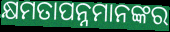
କ୍ଷମତାପନ୍ନମାନଙ୍କର